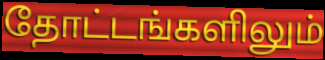
தோட்டங்களிலும்